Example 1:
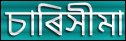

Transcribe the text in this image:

চাৰিসীমা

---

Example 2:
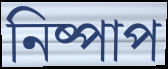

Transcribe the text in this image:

নিষ্পাপ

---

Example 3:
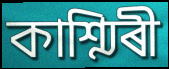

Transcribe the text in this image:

কাশ্মিৰী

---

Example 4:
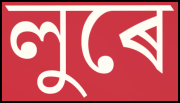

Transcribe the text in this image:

লুৰে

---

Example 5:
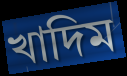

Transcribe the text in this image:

খাদিম